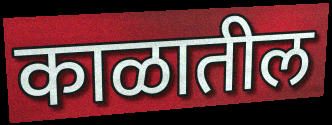
काळातील